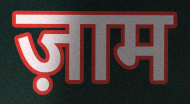
ज़ाम